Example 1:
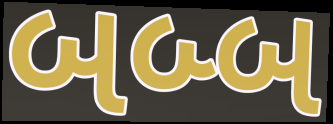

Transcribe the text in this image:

બબ્બ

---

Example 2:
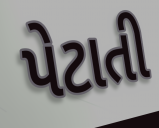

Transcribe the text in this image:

પેટાતી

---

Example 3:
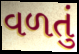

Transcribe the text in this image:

વળતું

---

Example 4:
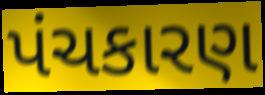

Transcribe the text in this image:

પંચકારણ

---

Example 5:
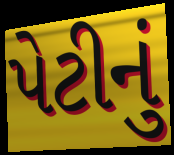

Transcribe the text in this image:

પેટીનું